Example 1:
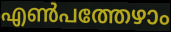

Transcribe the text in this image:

എൺപത്തേഴാം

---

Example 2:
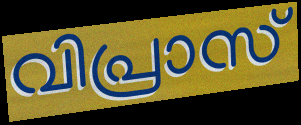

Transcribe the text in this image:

വിപ്രാസ്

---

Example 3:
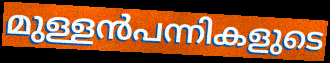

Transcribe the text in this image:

മുള്ളൻപന്നികളുടെ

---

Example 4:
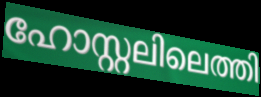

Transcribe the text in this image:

ഹോസ്റ്റലിലെത്തി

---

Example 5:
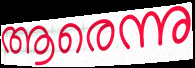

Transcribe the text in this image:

ആരെന്നു